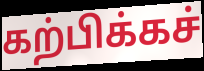
கற்பிக்கச்